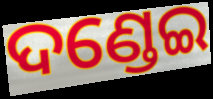
ଦଣ୍ଡେଇ